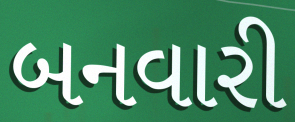
બનવારી